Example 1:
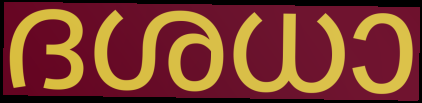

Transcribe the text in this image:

ദശധാ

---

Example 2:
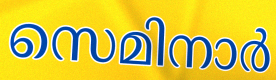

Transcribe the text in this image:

സെമിനാർ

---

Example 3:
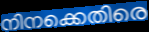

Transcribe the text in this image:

നിനക്കെതിരെ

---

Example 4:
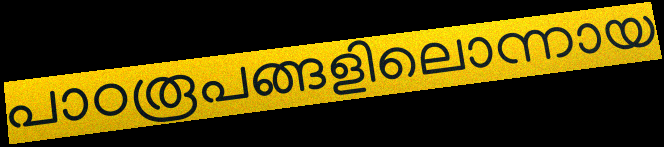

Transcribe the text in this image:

പാഠരൂപങ്ങളിലൊന്നായ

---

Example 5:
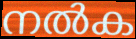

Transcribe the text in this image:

നൽക